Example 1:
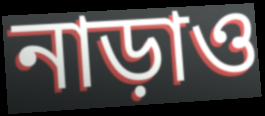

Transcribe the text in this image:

নাড়াও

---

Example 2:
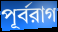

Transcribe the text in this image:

পূর্বরাগ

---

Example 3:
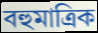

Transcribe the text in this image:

বহুমাত্রিক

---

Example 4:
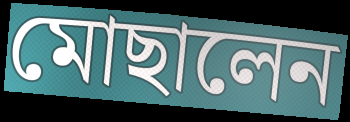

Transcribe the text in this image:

মোছালেন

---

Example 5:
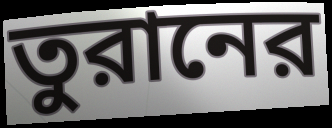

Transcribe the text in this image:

তুরানের